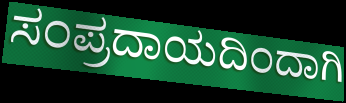
ಸಂಪ್ರದಾಯದಿಂದಾಗಿ